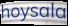
hoysala